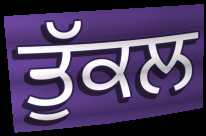
ਤੁੱਕਲ